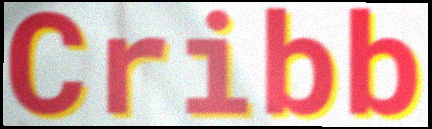
Cribb